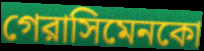
গেরাসিমেনকো